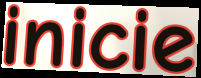
inicie